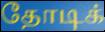
தோடிக்